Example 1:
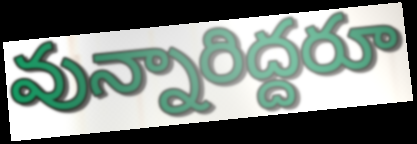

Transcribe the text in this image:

వున్నారిద్దరూ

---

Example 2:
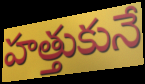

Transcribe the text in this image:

హత్తుకునే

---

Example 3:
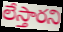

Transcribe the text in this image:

లేస్తారని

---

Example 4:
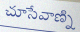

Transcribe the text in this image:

చూసేవాణ్ని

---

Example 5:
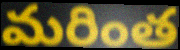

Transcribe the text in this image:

మరింత